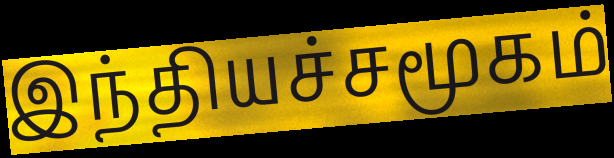
இந்தியச்சமூகம்